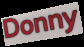
Donny